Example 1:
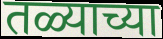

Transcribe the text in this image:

तळ्याच्या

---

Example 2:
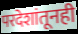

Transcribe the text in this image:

परदेशांतूनही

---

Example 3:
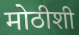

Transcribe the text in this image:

मोठीशी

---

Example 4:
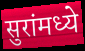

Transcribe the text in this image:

सुरांमध्ये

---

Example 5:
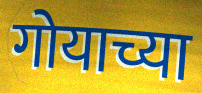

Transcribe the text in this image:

गोयाच्या